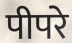
पीपरे